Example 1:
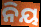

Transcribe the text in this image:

ନିୟ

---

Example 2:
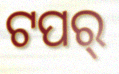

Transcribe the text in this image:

ଟପର୍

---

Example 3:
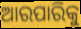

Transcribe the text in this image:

ଆରପାରିକୁ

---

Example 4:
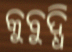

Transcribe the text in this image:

କୁବୁଦ୍ଧି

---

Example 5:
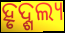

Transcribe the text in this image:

ହୃଦ୍ଶଲ୍ୟ